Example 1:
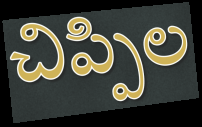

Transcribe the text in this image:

చిప్పిల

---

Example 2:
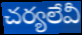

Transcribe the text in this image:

చర్యలేవీ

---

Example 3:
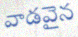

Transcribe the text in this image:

వాడవైన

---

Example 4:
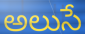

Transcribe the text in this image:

అలుసే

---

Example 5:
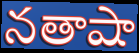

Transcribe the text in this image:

నతాషా